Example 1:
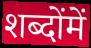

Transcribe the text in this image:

शब्दोंमें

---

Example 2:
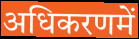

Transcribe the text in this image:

अधिकरणमें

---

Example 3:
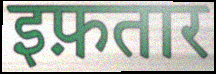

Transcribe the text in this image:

इफ़तार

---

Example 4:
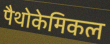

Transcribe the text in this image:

पैथोकेमिकल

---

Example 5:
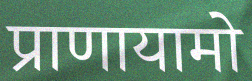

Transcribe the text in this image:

प्राणायामो